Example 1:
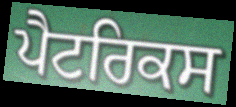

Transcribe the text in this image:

ਪੈਟਰਿਕਸ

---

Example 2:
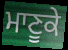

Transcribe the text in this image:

ਮਾਣੂਕੇ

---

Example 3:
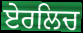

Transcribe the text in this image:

ਏਰਲਿਚ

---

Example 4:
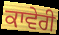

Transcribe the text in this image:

ਕਾਵੇਰੀ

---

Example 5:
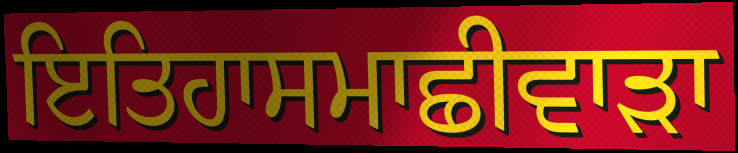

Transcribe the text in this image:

ਇਤਿਹਾਸਮਾਛੀਵਾੜਾ